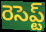
రెసెప్ట్